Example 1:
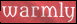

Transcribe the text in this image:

warmly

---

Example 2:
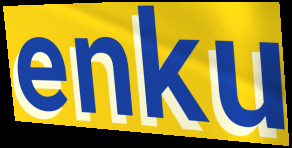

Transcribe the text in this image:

enku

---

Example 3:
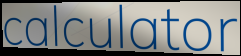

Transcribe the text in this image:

calculator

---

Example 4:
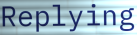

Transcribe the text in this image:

Replying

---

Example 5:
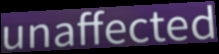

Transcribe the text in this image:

unaffected